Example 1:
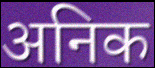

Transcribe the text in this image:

अनिक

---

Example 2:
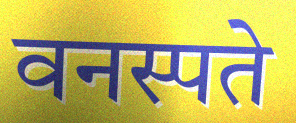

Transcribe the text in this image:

वनस्पते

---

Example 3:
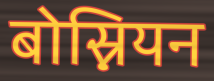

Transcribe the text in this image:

बोस्नियन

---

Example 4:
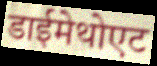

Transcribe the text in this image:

डाईमेथोएट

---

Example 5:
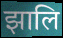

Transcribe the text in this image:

झालि